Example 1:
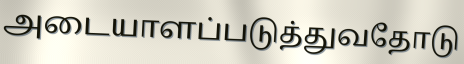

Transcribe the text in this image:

அடையாளப்படுத்துவதோடு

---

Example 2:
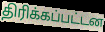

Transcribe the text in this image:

திரிக்கப்பட்டன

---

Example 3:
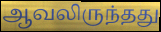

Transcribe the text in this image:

ஆவலிருந்தது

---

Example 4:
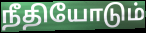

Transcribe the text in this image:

நீதியோடும்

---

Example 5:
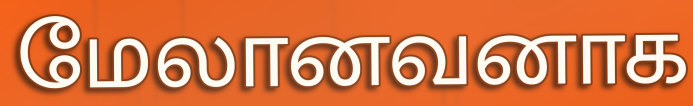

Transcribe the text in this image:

மேலானவனாக